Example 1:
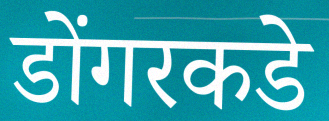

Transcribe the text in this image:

डोंगरकडे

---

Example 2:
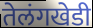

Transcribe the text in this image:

तेलंगखेडी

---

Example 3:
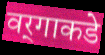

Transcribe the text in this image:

वर्गाकडे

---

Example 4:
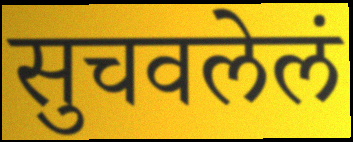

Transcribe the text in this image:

सुचवलेलं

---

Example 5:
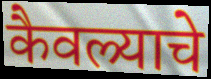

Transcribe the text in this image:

कैवल्याचे